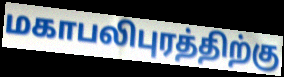
மகாபலிபுரத்திற்கு